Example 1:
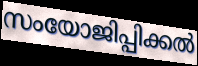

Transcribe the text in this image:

സംയോജിപ്പിക്കൽ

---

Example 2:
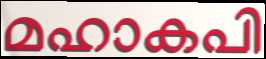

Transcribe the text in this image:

മഹാകപി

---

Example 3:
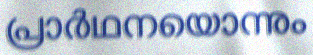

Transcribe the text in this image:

പ്രാർഥനയൊന്നും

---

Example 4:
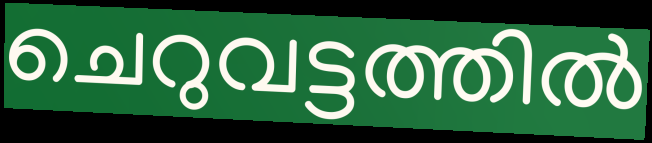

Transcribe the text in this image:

ചെറുവട്ടത്തിൽ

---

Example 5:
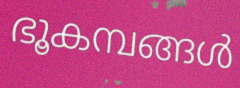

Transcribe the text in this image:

ഭൂകമ്പങ്ങൾ